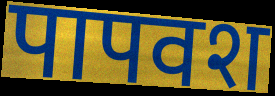
पापवश